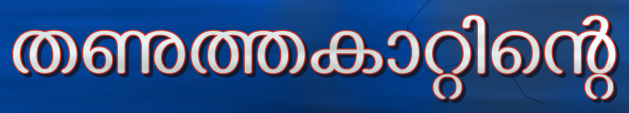
തണുത്തകാറ്റിന്റെ